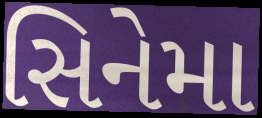
સિનેમા